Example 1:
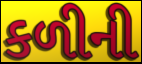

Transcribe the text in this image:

કળીની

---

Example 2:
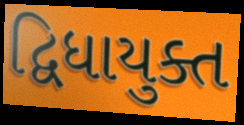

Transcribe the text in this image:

દ્વિધાયુક્ત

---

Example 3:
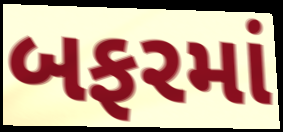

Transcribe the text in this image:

બફરમાં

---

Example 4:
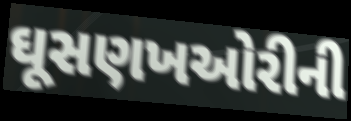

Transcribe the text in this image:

ઘૂસણખઓરીની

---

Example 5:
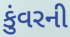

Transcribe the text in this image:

કુંવરની